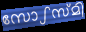
സോഽസ്മി